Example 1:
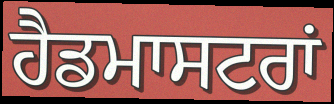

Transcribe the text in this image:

ਹੈਡਮਾਸਟਰਾਂ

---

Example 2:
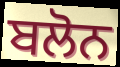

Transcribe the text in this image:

ਬਲੋਨ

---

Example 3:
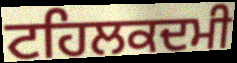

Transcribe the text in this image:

ਟਹਿਲਕਦਮੀ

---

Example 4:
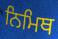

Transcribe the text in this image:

ਨਿਮਿਥ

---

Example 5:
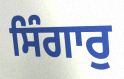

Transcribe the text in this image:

ਸਿੰਗਾਰੁ